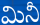
మినీ